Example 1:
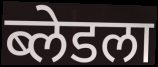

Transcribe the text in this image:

ब्लेडला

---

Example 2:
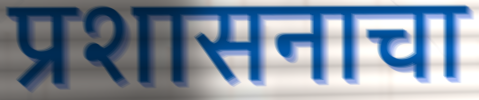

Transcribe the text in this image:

प्रशासनाचा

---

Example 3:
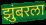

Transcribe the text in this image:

झुंबरला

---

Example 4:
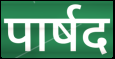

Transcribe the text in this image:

पार्षद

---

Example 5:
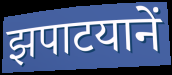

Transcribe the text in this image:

झपाटयानें